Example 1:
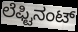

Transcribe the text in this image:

ಲೆಫ್ಟಿನಂಟ್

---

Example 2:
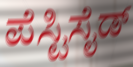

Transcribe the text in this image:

ಪೆಸ್ಟಿಸೈಡ್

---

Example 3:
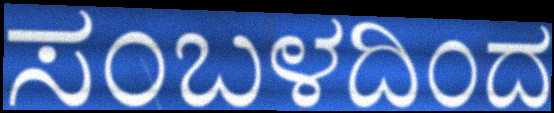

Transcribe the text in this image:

ಸಂಬಳದಿಂದ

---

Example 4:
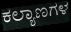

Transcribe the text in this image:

ಕಲ್ಯಾಣಗಳ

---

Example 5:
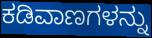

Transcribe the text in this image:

ಕಡಿವಾಣಗಳನ್ನು